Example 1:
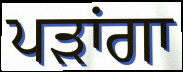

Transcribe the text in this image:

ਪੜਾਂਗਾ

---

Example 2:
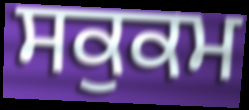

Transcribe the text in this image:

ਸਕੁਕਮ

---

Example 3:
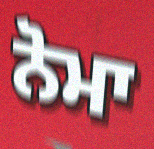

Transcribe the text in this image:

ਨੋਮਾ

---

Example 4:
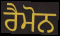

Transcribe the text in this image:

ਰੈਮੋਨ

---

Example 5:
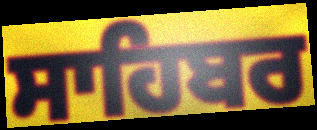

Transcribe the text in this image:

ਸਾਹਿਬਰ